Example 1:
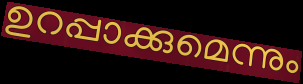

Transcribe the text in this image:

ഉറപ്പാക്കുമെന്നും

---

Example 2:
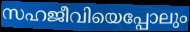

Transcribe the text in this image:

സഹജീവിയെപ്പോലും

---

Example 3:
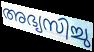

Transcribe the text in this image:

അഭ്യസിച്ചു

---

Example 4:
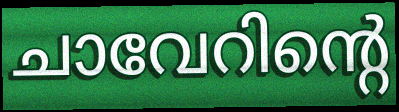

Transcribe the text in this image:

ചാവേറിന്റെ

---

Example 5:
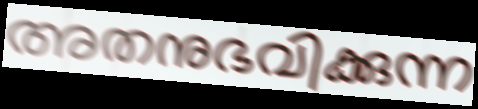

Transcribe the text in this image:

അതനുഭവിക്കുന്ന